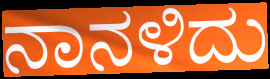
ನಾನಳಿದು